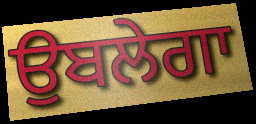
ਉਬਲੇਗਾ